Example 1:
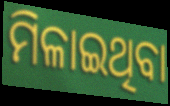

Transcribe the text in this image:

ମିଳାଇଥିବା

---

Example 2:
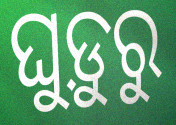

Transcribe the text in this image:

ଘୁଡ଼ୁରୁ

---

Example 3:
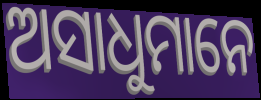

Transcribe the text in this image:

ଅସାଧୁମାନେ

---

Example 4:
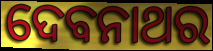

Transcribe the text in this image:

ଦେବନାଥର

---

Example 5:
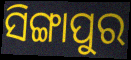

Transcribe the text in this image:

ସିଙ୍ଗାପୁର